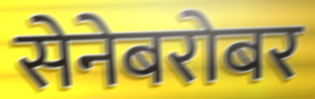
सेनेबरोबर